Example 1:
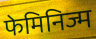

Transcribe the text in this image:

फेमिनिज्‍म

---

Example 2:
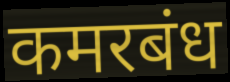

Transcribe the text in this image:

कमरबंध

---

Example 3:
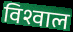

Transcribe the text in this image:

विश्वाल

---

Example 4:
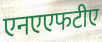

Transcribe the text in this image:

एनएएफटीए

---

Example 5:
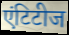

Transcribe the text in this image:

एंटिटीज